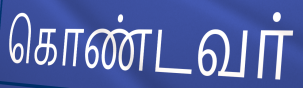
கொண்டவர்